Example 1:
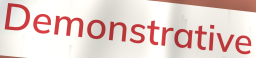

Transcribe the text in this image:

Demonstrative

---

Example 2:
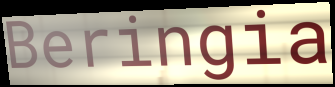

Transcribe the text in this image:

Beringia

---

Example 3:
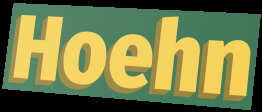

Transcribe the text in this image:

Hoehn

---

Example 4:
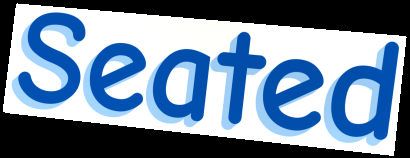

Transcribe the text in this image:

Seated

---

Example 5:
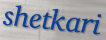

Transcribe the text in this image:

shetkari